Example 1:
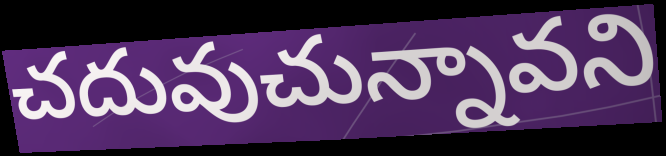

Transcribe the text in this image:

చదువుచున్నావని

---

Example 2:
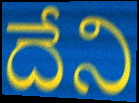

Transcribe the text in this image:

దేని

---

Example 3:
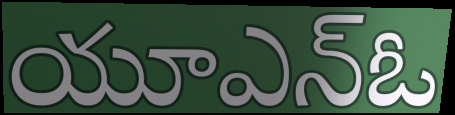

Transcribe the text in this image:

యూఎన్ఓ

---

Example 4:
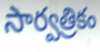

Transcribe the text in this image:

సార్వత్రికం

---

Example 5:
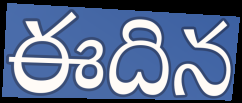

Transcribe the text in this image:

ఈదిన